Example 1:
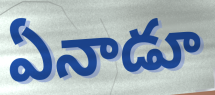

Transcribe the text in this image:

ఏనాడూ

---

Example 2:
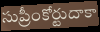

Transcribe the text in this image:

సుప్రీంకోర్టుదాకా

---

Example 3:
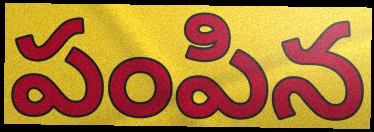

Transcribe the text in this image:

పంపిన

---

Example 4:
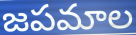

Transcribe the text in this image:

జపమాల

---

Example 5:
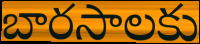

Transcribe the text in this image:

బారసాలకు